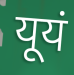
यूयं